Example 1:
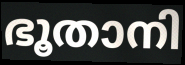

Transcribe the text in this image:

ഭൂതാനി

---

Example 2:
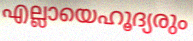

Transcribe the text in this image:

എല്ലായെഹൂദ്യരും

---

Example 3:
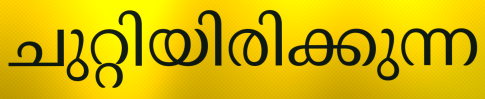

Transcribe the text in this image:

ചുറ്റിയിരിക്കുന്ന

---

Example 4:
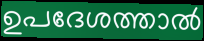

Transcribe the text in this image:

ഉപദേശത്താൽ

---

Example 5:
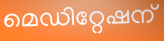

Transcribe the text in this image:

മെഡിറ്റേഷന്